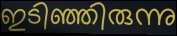
ഇടിഞ്ഞിരുന്നു